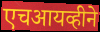
एचआयव्हीने